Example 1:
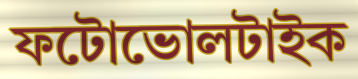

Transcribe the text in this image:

ফটোভোলটাইক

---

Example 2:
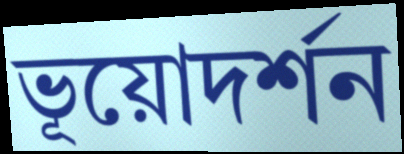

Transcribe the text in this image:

ভূয়োদর্শন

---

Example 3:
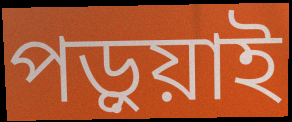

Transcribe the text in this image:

পড়ুয়াই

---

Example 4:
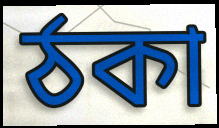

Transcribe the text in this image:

ঠকা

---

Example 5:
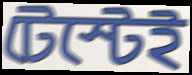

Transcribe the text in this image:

টেস্টেই